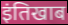
इंतिखाब